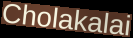
Cholakalai